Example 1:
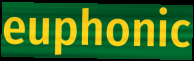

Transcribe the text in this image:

euphonic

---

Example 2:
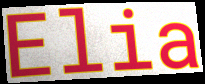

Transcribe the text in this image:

Elia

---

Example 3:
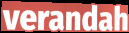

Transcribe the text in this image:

verandah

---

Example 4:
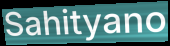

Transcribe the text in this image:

Sahityano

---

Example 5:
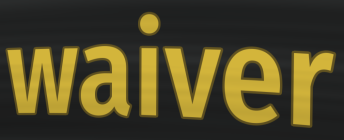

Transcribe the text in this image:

waiver